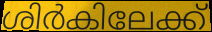
ശിർകിലേക്ക്